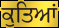
ਕੁਤਿਆਂ